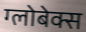
ग्लोबेक्स